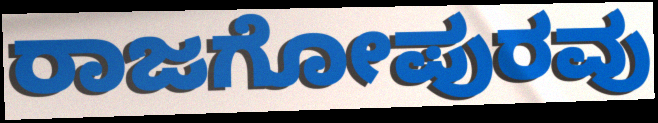
ರಾಜಗೋಪುರವು